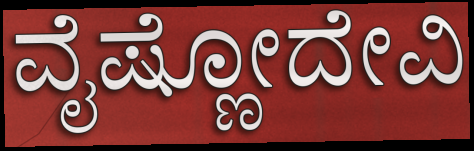
ವೈಷ್ಣೋದೇವಿ